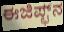
ಈಜಿಪ್ಟ್‌ನ